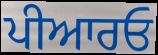
ਪੀਆਰਓ